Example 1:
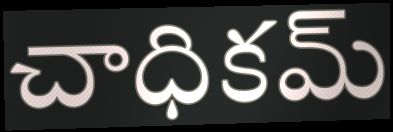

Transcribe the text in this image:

చాధికమ్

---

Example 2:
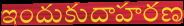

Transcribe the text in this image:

ఇందుకుదాహరణ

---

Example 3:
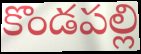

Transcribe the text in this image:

కొండపల్లి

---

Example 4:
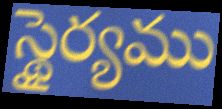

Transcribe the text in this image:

స్థైర్యము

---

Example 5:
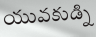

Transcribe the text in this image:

యువకుడ్ని